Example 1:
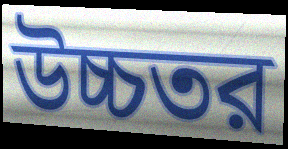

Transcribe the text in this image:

উচ্চতর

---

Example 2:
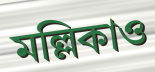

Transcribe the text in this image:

মল্লিকাও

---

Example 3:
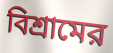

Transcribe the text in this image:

বিশ্রামের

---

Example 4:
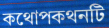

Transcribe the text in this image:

কথোপকথনটি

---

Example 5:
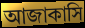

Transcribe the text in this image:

আজাকাসি